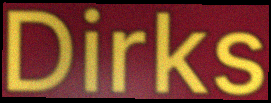
Dirks